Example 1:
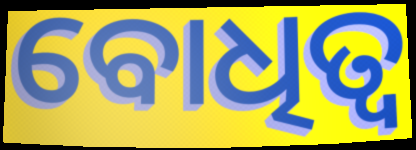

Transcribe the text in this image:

ବୋଧିତ୍ୱ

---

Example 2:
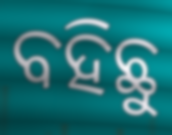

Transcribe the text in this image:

ବହିଛୁ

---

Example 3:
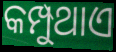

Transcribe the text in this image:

କମ୍ପୁଥାଏ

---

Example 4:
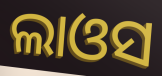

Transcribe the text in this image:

ଲାଓସ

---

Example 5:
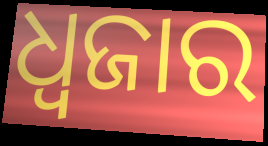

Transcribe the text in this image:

ଧ୍ୱଜାର